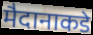
मैदानाकडे